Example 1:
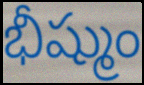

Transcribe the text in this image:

భీష్ముం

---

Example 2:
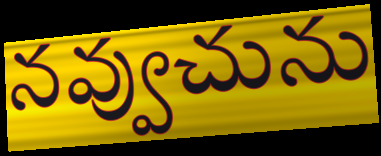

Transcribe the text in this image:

నవ్వుచును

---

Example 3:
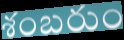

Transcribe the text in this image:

శంబరుం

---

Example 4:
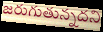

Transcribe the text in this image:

జరుగుతున్నదని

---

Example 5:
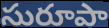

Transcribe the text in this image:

సురూపా